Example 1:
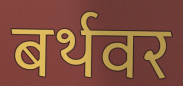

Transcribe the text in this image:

बर्थवर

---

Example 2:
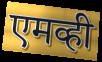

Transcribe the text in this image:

एमव्ही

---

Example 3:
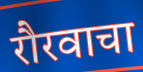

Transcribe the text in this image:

रौरवाचा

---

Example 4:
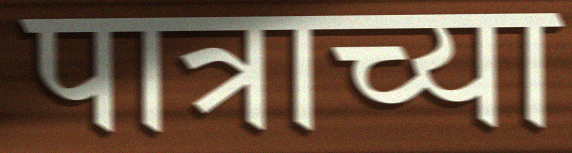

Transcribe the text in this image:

पात्राच्‍या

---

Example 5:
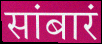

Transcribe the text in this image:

सांबारं